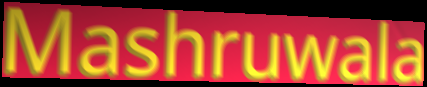
Mashruwala